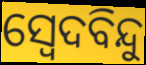
ସ୍ଵେଦବିନ୍ଦୁ